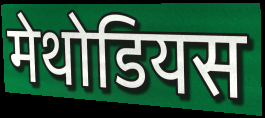
मेथोडियस